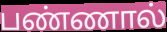
பண்ணால்